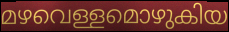
മഴവെള്ളമൊഴുകിയ